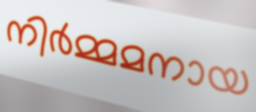
നിർമ്മമനായ